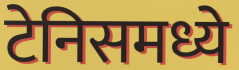
टेनिसमध्ये